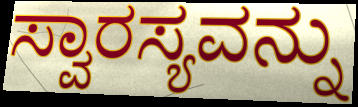
ಸ್ವಾರಸ್ಯವನ್ನು